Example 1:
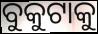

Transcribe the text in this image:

ବୁକୁଟାକୁ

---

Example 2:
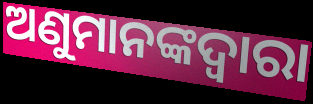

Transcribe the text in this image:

ଅଣୁମାନଙ୍କଦ୍ଵାରା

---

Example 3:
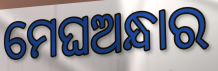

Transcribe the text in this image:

ମେଘଅନ୍ଧାର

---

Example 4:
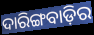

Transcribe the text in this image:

ଦାରିଙ୍ଗବାଡ଼ିର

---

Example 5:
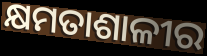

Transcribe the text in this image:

କ୍ଷମତାଶାଳୀର